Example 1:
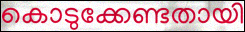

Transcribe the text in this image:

കൊടുക്കേണ്ടതായി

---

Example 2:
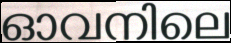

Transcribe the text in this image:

ഓവനിലെ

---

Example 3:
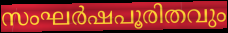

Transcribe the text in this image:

സംഘർഷപൂരിതവും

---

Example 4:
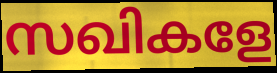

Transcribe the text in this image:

സഖികളേ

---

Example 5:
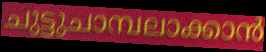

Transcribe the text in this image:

ചുട്ടുചാമ്പലാക്കാൻ